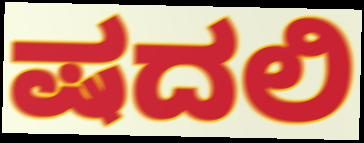
ಷದಲಿ